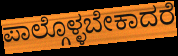
ಪಾಲ್ಗೊಳ್ಳಬೇಕಾದರೆ